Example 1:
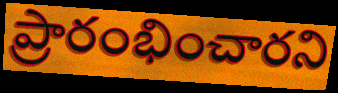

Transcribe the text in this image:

ప్రారంభించారని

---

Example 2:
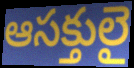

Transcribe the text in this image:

ఆసక్తులై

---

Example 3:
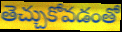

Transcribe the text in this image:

తెచ్చుకోవడంతో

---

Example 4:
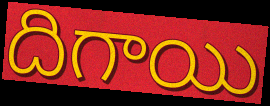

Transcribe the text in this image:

దిగాయి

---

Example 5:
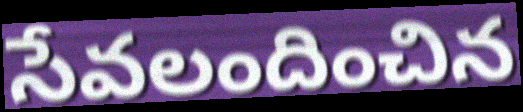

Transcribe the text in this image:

సేవలందించిన